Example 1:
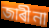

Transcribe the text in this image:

জাৰীনা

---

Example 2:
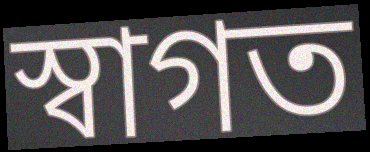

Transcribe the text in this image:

স্বাগত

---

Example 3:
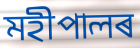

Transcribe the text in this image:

মহীপালৰ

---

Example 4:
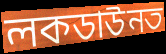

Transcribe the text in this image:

লকডাউনত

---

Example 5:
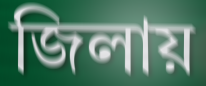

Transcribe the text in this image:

জিলায়